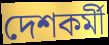
দেশকর্মী